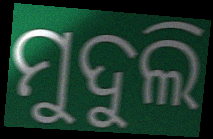
ମୁଦୁଲି